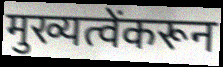
मुख्यत्वेंकरून